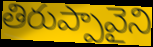
తిరుప్పావైని